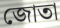
জোতা